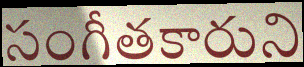
సంగీతకారుని